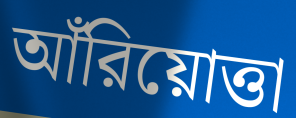
আঁরিয়োত্তা